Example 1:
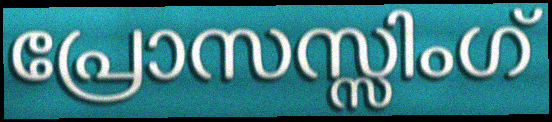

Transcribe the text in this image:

പ്രോസസ്സിംഗ്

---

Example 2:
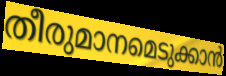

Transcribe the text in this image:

തീരുമാനമെടുക്കാൻ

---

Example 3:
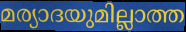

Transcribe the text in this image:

മര്യാദയുമില്ലാത്ത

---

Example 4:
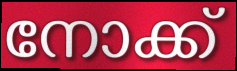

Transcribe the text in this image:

നോക്ക്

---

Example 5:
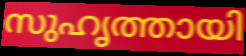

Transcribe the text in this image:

സുഹൃത്തായി